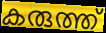
കരുത്ത്